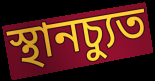
স্থানচ্যুত